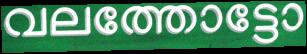
വലത്തോട്ടോ